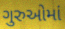
ગુરુઓમાં